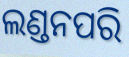
ଲଣ୍ଡନପରି